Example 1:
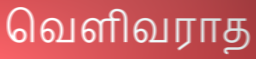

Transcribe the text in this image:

வெளிவராத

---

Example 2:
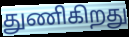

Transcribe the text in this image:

துணிகிறது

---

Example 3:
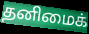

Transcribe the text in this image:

தனிமைக்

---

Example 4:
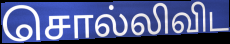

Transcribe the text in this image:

சொல்லிவிட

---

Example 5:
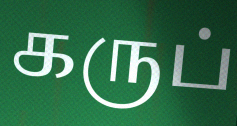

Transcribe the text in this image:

கருப்